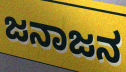
ಜನಾಜನ